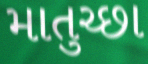
માતુચ્છા